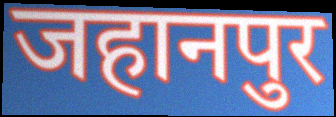
जहानपुर